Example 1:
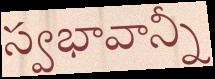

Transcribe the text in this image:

స్వభావాన్నీ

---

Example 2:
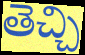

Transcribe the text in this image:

తెచ్చి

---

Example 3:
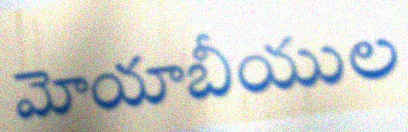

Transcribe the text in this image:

మోయాబీయుల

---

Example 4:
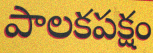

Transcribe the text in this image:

పాలకపక్షం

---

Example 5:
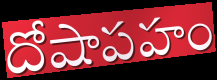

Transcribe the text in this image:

దోషాపహం